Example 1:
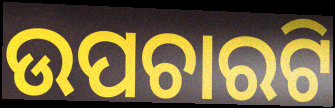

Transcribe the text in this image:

ଉପଚାରଟି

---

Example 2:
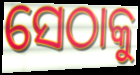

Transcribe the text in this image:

ସେଠାକୁ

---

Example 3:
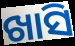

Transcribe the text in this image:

ଖାସି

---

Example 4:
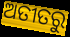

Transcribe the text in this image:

ଅତୀତରୁ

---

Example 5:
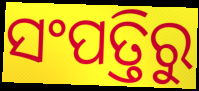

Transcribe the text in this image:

ସଂପତ୍ତିରୁ